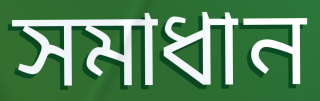
সমাধান